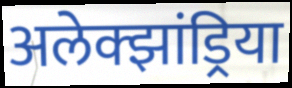
अलेक्झांड्रिया